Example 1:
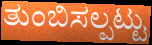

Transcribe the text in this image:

ತುಂಬಿಸಲ್ಪಟ್ಟು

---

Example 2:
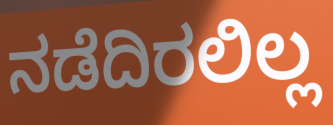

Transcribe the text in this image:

ನಡೆದಿರಲಿಲ್ಲ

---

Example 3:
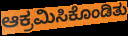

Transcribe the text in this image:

ಆಕ್ರಮಿಸಿಕೊಂಡಿತು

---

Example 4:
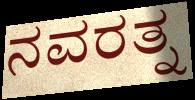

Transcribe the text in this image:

ನವರತ್ನ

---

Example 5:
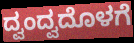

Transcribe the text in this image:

ದ್ವಂದ್ವದೊಳಗೆ